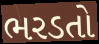
ભરડતો